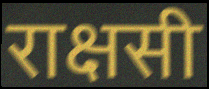
राक्षसी